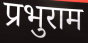
प्रभुराम